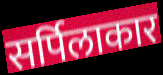
सर्पिलाकार